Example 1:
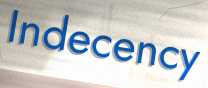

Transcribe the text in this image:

Indecency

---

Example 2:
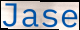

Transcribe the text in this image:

Jase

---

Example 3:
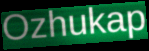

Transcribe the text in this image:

Ozhukap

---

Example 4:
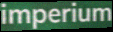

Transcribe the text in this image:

imperium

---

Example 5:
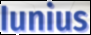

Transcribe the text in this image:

Iunius